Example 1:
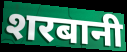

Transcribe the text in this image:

शरबानी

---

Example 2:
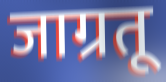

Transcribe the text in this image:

जाग्रतू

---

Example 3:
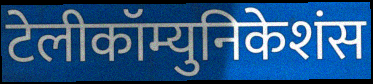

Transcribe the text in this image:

टेलीकॉम्युनिकेशंस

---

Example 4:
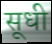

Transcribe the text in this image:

सूधी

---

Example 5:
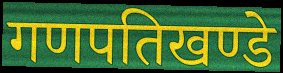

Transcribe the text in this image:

गणपतिखण्डे